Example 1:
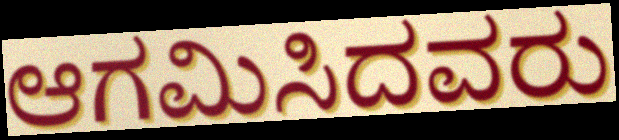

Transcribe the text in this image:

ಆಗಮಿಸಿದವರು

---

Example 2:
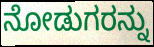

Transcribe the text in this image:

ನೋಡುಗರನ್ನು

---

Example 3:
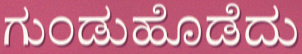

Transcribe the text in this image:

ಗುಂಡುಹೊಡೆದು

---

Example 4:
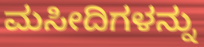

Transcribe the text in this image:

ಮಸೀದಿಗಳನ್ನು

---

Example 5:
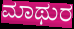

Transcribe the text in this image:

ಮಾಥುರ